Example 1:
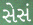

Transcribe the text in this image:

સેસં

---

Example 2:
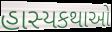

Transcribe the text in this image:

હાસ્યકથાઓ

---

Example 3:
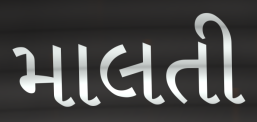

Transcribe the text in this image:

માલતી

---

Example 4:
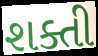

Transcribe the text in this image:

શક્તી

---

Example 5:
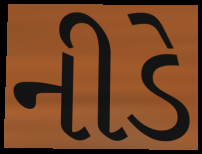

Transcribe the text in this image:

નીડે